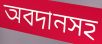
অবদানসহ